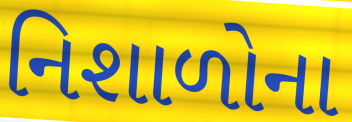
નિશાળોના